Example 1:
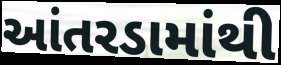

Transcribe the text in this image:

આંતરડામાંથી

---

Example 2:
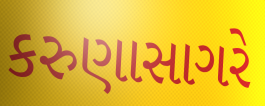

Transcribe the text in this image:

કરુણાસાગરે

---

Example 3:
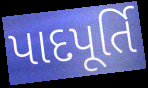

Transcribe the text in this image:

પાદપૂર્તિ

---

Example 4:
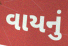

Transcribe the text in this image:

વાયનું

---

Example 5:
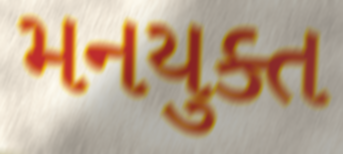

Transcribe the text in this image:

મનયુક્ત